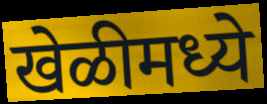
खेळीमध्ये